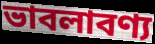
ভাবলাবণ্য